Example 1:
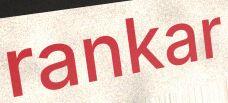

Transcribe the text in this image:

rankar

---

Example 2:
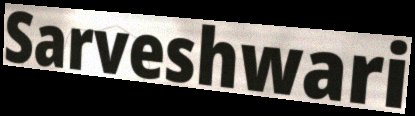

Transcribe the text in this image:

Sarveshwari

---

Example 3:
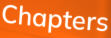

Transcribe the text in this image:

Chapters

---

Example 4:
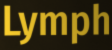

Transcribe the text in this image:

Lymph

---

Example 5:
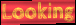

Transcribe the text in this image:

Looking